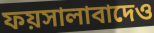
ফয়সালাবাদেও